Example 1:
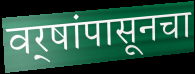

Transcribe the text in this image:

वर्षांपासूनचा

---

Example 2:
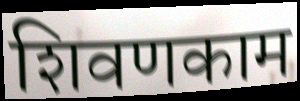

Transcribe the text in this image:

शिवणकाम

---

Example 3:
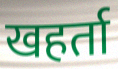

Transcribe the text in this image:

खहर्ता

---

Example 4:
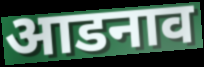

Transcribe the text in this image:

आडनाव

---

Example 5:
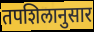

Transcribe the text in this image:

तपशिलानुसार